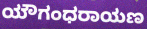
ಯೌಗಂಧರಾಯಣ